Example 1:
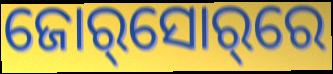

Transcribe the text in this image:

ଜୋର୍‌ସୋର୍‌ରେ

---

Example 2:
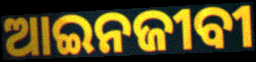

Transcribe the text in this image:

ଆଇନଜୀବୀ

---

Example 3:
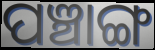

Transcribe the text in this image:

ପଞ୍ଚାଙ୍ଗ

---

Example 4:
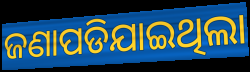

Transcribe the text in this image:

ଜଣାପଡିଯାଇଥିଲା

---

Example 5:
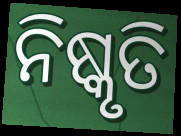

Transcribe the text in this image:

ନିଷ୍କୃତି